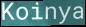
Koinya